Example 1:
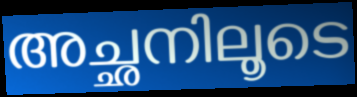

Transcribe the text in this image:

അച്ഛനിലൂടെ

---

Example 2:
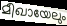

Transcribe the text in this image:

മീഖായേലും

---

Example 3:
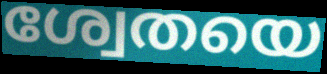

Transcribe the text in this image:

ശ്വേതയെ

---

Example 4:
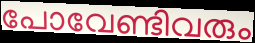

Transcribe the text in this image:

പോവേണ്ടിവരും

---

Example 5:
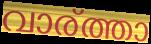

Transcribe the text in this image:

വാര്ത്താ